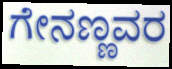
ಗೇನಣ್ಣವರ